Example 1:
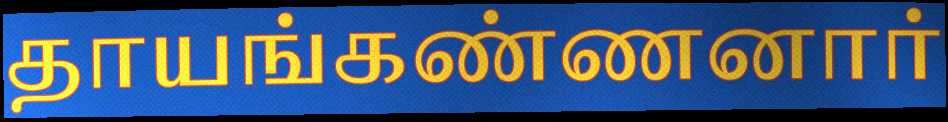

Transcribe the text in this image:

தாயங்கண்ணனார்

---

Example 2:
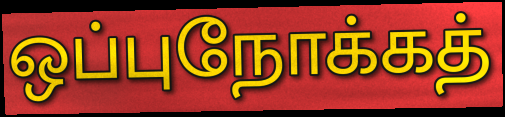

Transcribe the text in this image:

ஒப்புநோக்கத்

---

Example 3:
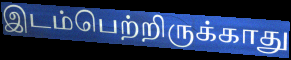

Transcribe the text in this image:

இடம்பெற்றிருக்காது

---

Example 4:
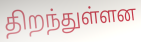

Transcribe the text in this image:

திறந்துள்ளன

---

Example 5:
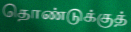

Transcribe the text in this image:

தொண்டுக்குத்